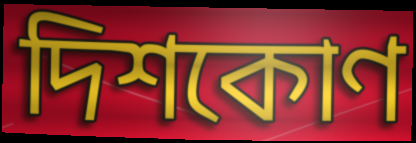
দিশকোণ